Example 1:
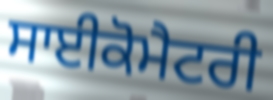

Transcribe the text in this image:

ਸਾਈਕੋਮੈਟਰੀ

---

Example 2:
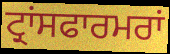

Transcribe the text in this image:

ਟ੍ਰਾਂਸਫਾਰਮਰਾਂ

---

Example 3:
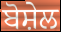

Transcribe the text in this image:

ਬੋਸ਼ੇਲ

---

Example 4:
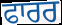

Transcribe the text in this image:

ਫਾਰਰ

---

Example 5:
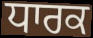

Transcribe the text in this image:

ਧਾਰਕ